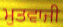
ਮੁਤਵਾਜੀ